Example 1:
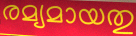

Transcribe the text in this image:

രമ്യമായതു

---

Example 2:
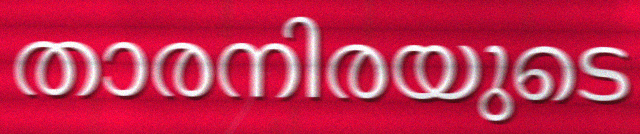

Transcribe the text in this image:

താരനിരയുടെ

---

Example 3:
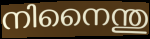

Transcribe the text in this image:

നിനൈന്തു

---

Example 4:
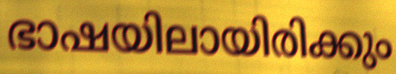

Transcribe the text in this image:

ഭാഷയിലായിരിക്കും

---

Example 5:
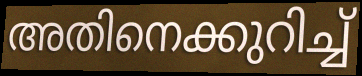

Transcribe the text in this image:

അതിനെക്കുറിച്ച്